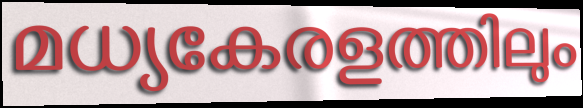
മധ്യകേരളത്തിലും